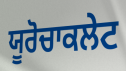
ਯੂਰੋਚਾਕਲੇਟ